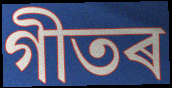
গীতৰ